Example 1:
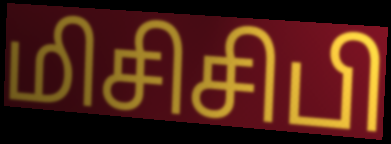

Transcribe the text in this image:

மிசிசிபி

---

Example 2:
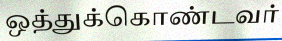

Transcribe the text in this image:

ஒத்துக்கொண்டவர்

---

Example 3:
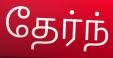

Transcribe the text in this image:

தேர்ந்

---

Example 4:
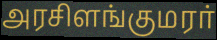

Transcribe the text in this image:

அரசிளங்குமரர்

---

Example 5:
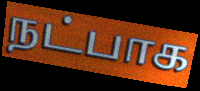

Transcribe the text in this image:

நட்பாக